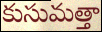
కుసుమత్తా